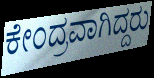
ಕೇಂದ್ರವಾಗಿದ್ದರು